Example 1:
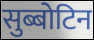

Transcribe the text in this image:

सुब्बोटिन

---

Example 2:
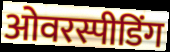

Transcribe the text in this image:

ओवरस्पीडिंग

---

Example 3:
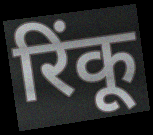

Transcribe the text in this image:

रिंकू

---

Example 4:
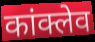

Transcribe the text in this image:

कांक्लेव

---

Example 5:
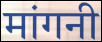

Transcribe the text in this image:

मांगनी